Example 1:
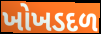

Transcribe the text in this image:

ખોખડદળ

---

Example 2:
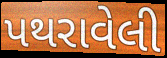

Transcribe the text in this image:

પથરાવેલી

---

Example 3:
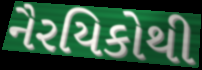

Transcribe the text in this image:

નૈરયિકોથી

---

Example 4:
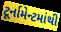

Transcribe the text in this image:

ટૂર્નામેન્ટમાંથી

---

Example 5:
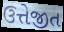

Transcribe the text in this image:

ઉત્તેજીત